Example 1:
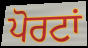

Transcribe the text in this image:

ਪੋਰਟਾਂ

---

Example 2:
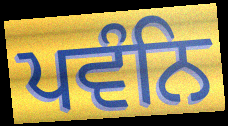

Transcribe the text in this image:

ਪਵੰਨਿ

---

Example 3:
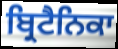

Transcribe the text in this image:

ਬ੍ਰਿਟੈਨਿਕਾ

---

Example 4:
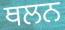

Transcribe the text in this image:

ਥਲਨ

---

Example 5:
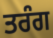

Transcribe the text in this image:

ਤਰੰਗ